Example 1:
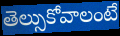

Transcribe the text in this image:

తెల్సుకోవాలంటే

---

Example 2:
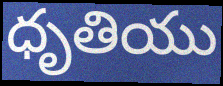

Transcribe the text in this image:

ధృతియు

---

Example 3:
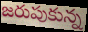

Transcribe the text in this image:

జరుపుకున్న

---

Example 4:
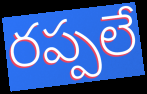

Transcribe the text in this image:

రప్పలే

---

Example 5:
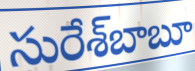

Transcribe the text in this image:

సురేశ్‌బాబూ